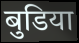
बुडिया